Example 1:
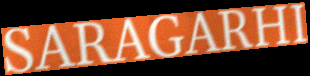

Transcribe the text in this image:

SARAGARHI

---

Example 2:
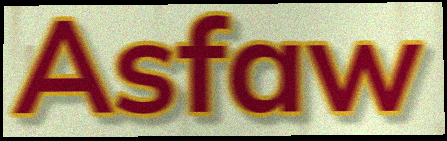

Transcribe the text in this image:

Asfaw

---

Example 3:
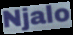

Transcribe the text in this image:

Njalo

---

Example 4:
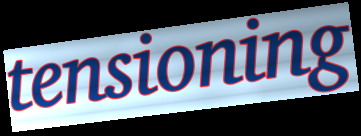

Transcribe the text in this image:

tensioning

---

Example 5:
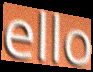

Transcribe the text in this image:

ello